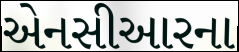
એનસીઆરના